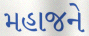
મહાજને